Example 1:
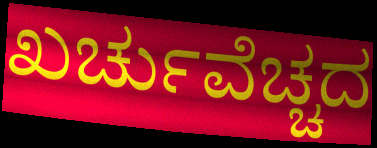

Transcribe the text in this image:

ಖರ್ಚುವೆಚ್ಚದ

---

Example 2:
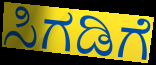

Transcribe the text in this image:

ಸಿಗಡಿಗೆ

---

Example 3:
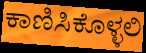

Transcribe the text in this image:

ಕಾಣಿಸಿಕೊಳ್ಳಲಿ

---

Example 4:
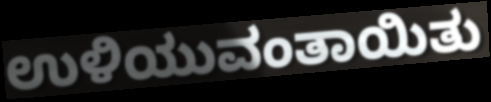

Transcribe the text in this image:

ಉಳಿಯುವಂತಾಯಿತು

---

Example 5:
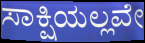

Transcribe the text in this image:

ಸಾಕ್ಷಿಯಲ್ಲವೇ